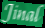
Jinal